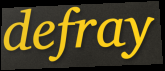
defray